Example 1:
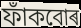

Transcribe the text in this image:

ফাঁকবোৰ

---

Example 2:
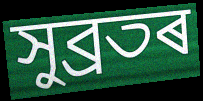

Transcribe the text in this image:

সুব্ৰতৰ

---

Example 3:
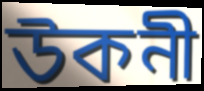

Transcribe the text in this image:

উকনী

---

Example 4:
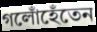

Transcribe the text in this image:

গলোঁহেঁতেন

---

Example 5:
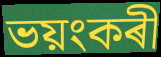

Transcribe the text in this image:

ভয়ংকৰী